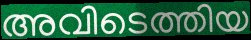
അവിടെത്തിയ